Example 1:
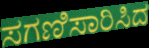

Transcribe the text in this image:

ಸಗಣಿಸಾರಿಸಿದ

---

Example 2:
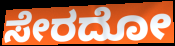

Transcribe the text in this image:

ಸೇರದೋ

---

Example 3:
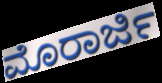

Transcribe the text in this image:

ಮೊರಾರ್ಜಿ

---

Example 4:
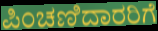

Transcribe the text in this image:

ಪಿಂಚಣಿದಾರರಿಗೆ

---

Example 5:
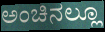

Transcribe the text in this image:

ಅಂಚಿನಲ್ಲೂ